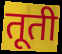
तूती